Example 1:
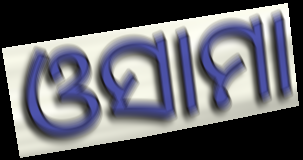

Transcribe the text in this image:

ଓସାମା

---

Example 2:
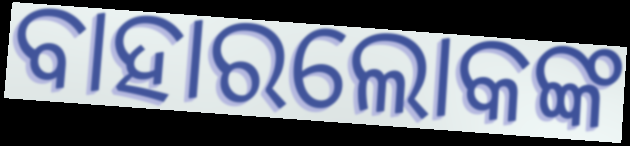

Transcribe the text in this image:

ବାହାରଲୋକଙ୍କ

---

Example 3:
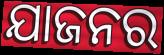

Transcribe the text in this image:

ଯାଜନର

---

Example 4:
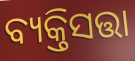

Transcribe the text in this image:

ବ୍ୟକ୍ତିସତ୍ତା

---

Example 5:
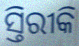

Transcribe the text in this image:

ସ୍ତିରୀକି